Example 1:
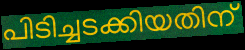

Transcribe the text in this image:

പിടിച്ചടക്കിയതിന്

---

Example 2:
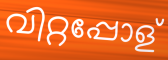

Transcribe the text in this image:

വിറ്റപ്പോള്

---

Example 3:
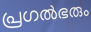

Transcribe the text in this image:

പ്രഗൽഭരും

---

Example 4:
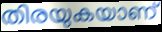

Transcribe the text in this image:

തിരയുകയാണ്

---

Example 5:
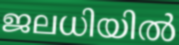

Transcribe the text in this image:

ജലധിയിൽ